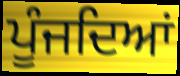
ਪੂੰਜਦਿਆਂ